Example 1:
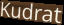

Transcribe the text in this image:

Kudrat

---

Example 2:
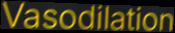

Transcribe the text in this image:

Vasodilation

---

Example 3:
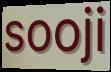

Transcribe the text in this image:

sooji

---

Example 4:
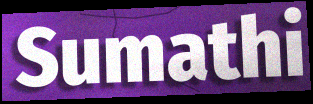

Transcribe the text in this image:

Sumathi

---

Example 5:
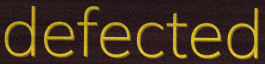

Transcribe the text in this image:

defected